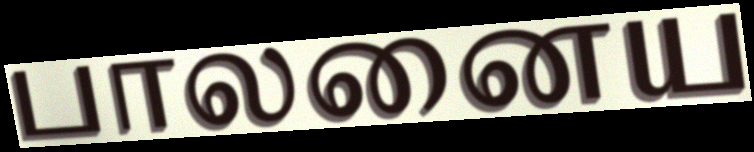
பாலனைய